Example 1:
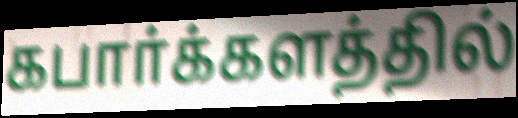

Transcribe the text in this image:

கபார்க்களத்தில்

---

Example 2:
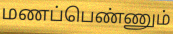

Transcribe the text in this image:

மணப்பெண்ணும்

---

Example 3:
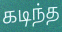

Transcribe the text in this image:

கடிந்த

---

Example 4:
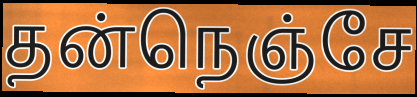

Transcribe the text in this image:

தன்நெஞ்சே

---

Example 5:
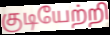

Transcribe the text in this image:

குடியேற்றி